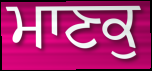
ਮਾਣਕੁ